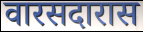
वारसदारास